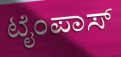
ಟೈಂಪಾಸ್